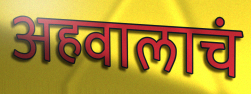
अहवालाचं